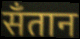
सँतान